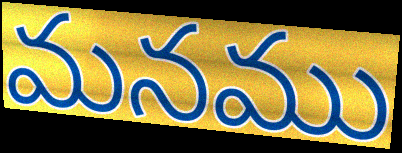
మనము